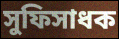
সুফিসাধক